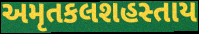
અમૃતકલશહસ્તાય